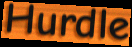
Hurdle